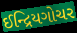
ઈન્દ્રિયગોચર